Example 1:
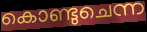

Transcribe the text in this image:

കൊണ്ടുചെന്ന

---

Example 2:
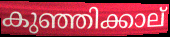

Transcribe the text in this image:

കുഞ്ഞിക്കാല്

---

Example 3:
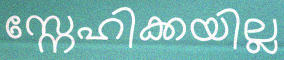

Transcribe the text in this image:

സ്നേഹിക്കയില്ല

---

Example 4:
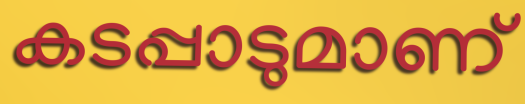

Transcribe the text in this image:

കടപ്പാടുമാണ്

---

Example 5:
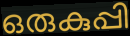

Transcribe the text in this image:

ഒരുകുപ്പി